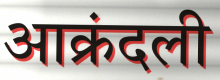
आक्रंदली